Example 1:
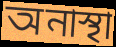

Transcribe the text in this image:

অনাস্থা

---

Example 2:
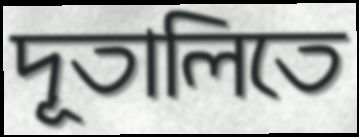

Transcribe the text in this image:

দূতালিতে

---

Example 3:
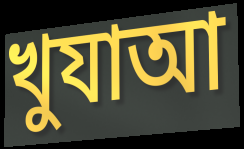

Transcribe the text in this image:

খুযাআ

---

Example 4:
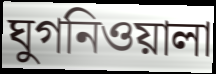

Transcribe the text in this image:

ঘুগনিওয়ালা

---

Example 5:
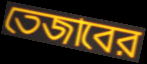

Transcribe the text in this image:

তেজাবের